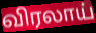
விரலாய்